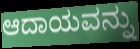
ಆದಾಯವನ್ನು